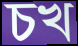
চখ